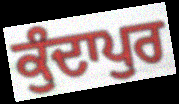
ਕੁੰਦਾਪੁਰ